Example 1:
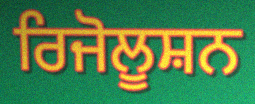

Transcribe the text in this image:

ਰਿਜੋਲੂਸ਼ਨ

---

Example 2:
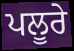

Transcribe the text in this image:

ਪਲੂਰੇ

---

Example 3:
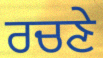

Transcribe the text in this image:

ਰਚਣੇ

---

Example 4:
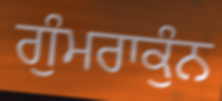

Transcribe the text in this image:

ਗੁੰਮਰਾਕੁੰਨ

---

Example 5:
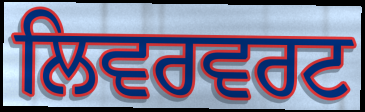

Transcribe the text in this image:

ਲਿਵਰਵਰਟ